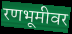
रणभूमीवर